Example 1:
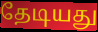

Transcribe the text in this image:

தேடியது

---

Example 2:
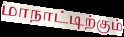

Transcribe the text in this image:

மாநாட்டிற்கும்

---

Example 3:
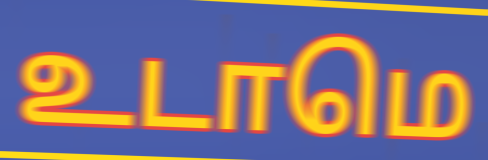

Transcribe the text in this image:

உடாமெ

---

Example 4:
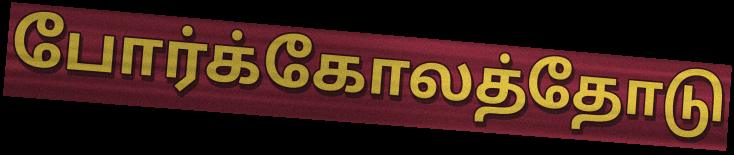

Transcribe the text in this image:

போர்க்கோலத்தோடு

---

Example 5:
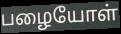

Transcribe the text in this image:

பழையோள்